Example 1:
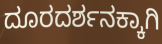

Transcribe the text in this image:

ದೂರದರ್ಶನಕ್ಕಾಗಿ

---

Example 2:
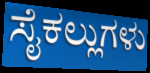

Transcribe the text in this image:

ಸೈಕಲ್ಲುಗಳು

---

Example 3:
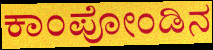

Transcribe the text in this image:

ಕಾಂಪೋಂಡಿನ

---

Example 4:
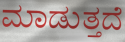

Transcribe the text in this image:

ಮಾಡುತ್ತದೆ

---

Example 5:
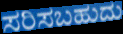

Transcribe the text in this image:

ಸರಿಸಬಹುದು